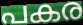
പകര